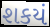
શકયં